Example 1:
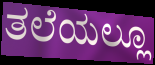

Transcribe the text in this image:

ತಲೆಯಲ್ಲೂ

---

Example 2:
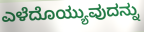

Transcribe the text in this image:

ಎಳೆದೊಯ್ಯುವುದನ್ನು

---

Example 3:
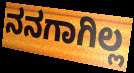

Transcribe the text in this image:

ನನಗಾಗಿಲ್ಲ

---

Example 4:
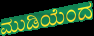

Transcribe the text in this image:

ಮುಡಿಯೆಂದ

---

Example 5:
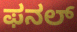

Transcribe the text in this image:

ಫನಲ್